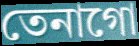
তেনাগো